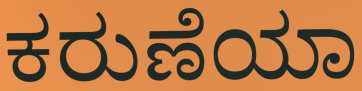
ಕರುಣೆಯಾ